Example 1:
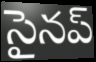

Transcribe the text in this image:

సైనప్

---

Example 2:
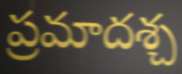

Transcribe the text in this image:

ప్రమాదశ్చ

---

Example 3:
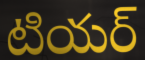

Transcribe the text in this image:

టియర్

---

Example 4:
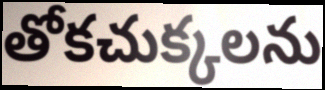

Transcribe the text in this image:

తోకచుక్కలను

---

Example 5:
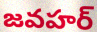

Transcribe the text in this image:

జవహర్